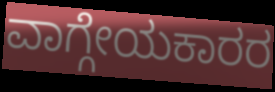
ವಾಗ್ಗೇಯಕಾರರ